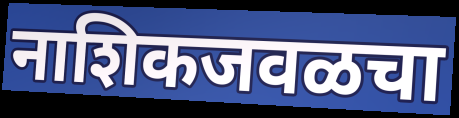
नाशिकजवळचा